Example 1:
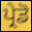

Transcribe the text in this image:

ਪ੍ਰੇਡੋ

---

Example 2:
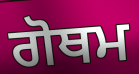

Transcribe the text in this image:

ਗੋਥਮ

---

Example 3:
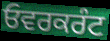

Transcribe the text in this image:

ਓਵਰਕਰੰਟ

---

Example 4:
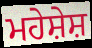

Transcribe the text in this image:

ਮਹੇਸ਼ੇਸ਼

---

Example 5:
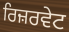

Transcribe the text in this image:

ਰਿਜ਼ਰਵੇਟ